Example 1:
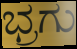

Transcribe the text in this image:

ಭ್ರಗು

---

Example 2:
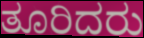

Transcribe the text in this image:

ತೂರಿದರು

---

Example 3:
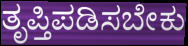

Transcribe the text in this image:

ತೃಪ್ತಿಪಡಿಸಬೇಕು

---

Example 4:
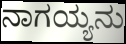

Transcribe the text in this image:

ನಾಗಯ್ಯನು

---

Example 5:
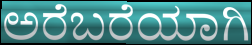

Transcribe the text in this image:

ಅರೆಬರೆಯಾಗಿ